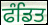
ਫੰਡਿਤ